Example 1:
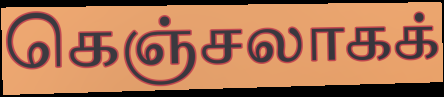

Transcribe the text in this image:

கெஞ்சலாகக்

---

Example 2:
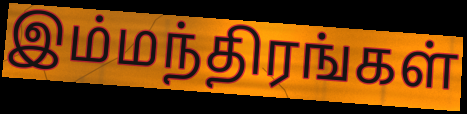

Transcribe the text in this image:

இம்மந்திரங்கள்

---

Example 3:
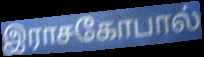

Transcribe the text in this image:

இராசகோபால்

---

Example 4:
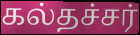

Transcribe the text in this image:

கல்தச்சர்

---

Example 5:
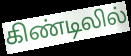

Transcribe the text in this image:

கிண்டிலில்